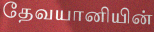
தேவயானியின்